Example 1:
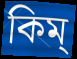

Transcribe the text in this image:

কিম্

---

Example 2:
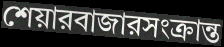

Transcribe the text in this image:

শেয়ারবাজারসংক্রান্ত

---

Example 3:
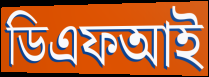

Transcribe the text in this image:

ডিএফআই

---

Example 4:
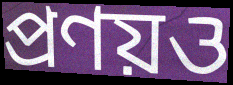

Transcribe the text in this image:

প্রণয়ও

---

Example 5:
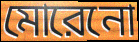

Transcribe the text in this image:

মোরেনো